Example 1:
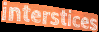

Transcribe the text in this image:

interstices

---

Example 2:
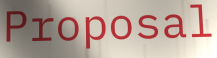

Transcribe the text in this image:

Proposal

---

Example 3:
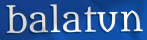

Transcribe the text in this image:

balatun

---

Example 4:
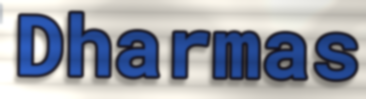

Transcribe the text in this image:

Dharmas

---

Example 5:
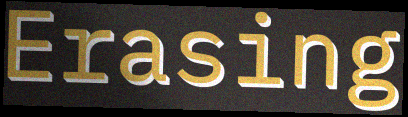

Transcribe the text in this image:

Erasing